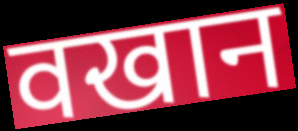
वखान